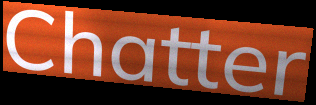
Chatter